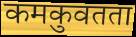
कमकुवतता